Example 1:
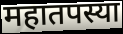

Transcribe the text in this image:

महातपस्या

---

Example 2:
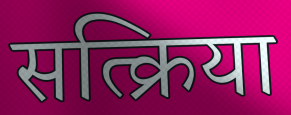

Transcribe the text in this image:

सत्क्रिया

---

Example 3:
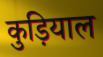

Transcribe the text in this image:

कुड़ियाल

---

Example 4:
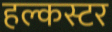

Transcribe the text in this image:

हल्कस्टर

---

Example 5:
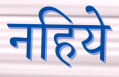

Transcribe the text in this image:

नहिये